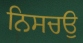
ਨਿਸਚਉ